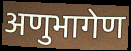
अणुभागेण